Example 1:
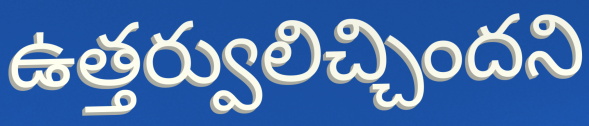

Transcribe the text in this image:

ఉత్తర్వులిచ్చిందని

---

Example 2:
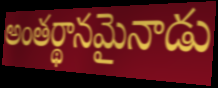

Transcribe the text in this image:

అంతర్థానమైనాడు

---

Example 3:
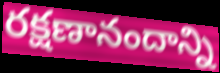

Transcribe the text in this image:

రక్షణానందాన్ని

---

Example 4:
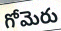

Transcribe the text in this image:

గోమెరు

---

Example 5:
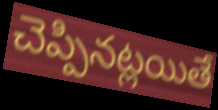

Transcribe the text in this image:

చెప్పినట్లయితే